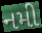
નમી